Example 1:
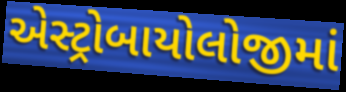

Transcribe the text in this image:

એસ્ટ્રોબાયોલોજીમાં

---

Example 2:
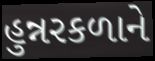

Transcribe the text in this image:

હુન્નરકળાને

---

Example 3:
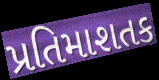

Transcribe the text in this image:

પ્રતિમાશતક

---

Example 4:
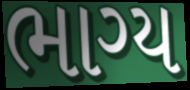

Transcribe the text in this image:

ભાગ્ય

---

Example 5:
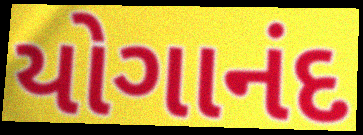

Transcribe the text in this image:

યોગાનંદ